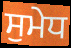
ਸੁਮੇਧ